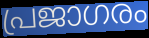
പ്രജാഗരം